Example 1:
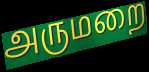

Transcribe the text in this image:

அருமறை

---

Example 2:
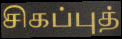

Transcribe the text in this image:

சிகப்புத்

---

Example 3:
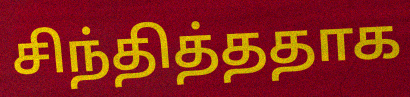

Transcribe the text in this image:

சிந்தித்ததாக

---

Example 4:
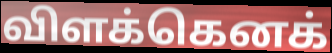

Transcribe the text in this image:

விளக்கெனக்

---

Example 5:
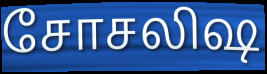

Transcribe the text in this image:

சோசலிஷ